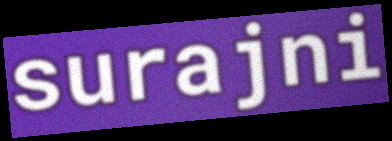
surajni